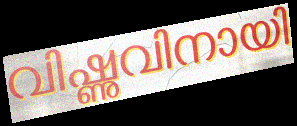
വിഷ്ണുവിനായി